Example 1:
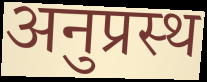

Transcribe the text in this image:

अनुप्रस्थ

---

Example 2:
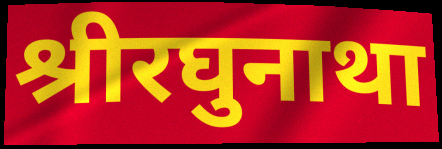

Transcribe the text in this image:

श्रीरघुनाथा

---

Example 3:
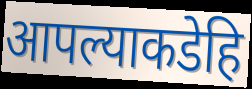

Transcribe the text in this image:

आपल्याकडेहि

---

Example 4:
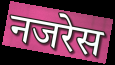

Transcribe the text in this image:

नजरेस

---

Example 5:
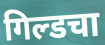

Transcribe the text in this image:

गिल्डचा